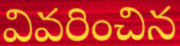
వివరించిన